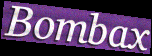
Bombax